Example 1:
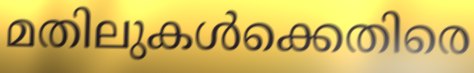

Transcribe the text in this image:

മതിലുകൾക്കെതിരെ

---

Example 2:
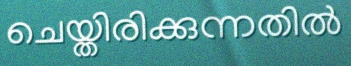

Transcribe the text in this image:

ചെയ്തിരിക്കുന്നതിൽ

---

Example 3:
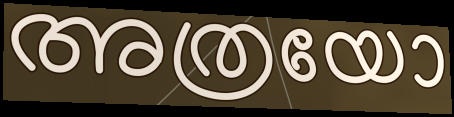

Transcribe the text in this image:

അത്രയോ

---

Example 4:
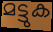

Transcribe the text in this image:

മട്ടുക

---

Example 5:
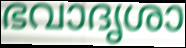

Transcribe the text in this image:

ഭവാദൃശാ